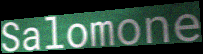
Salomone